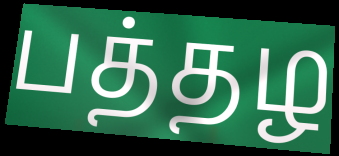
பத்தழ